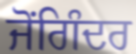
ਜੋਂਗਿੰਦਰ